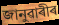
জানুৱাৰীৰ